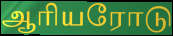
ஆரியரோடு